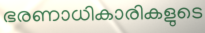
ഭരണാധികാരികളുടെ